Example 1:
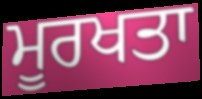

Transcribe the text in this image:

ਮੂਰਖਤਾ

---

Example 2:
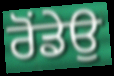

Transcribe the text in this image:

ਰੋਂਡੇਉ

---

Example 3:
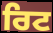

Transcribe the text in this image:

ਰਿਟ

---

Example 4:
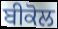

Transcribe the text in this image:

ਬੀਕੋਲ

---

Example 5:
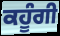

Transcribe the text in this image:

ਕਹੂੰਗੀ